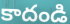
కాదండి